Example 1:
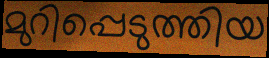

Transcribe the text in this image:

മുറിപ്പെടുത്തിയ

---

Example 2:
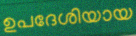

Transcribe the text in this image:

ഉപദേശിയായ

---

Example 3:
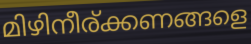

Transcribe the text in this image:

മിഴിനീര്ക്കണങ്ങളെ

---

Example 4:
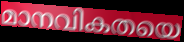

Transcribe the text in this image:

മാനവികതയെ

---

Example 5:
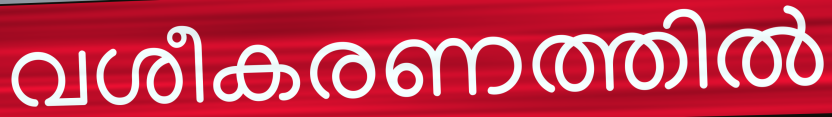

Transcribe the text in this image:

വശീകരണത്തിൽ